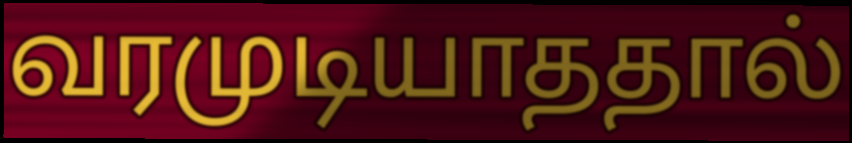
வரமுடியாததால்